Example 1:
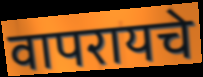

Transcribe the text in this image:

वापरायचे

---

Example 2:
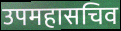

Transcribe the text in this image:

उपमहासचिव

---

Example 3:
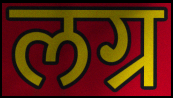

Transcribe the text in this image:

लग्र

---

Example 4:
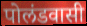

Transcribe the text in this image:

पोलंडवासी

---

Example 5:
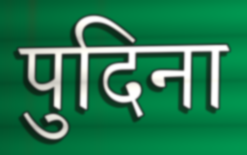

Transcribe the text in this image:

पुदिना